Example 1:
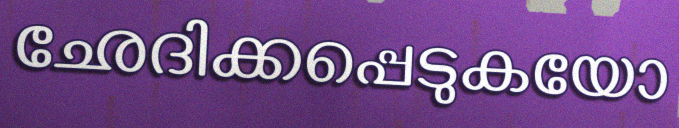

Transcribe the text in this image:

ഛേദിക്കപ്പെടുകയോ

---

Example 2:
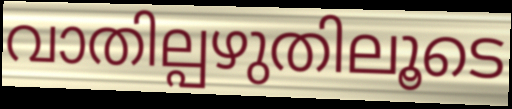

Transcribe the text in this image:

വാതില്പഴുതിലൂടെ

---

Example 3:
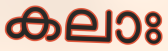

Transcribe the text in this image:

കലാഃ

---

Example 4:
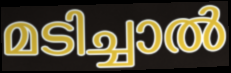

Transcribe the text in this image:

മടിച്ചാൽ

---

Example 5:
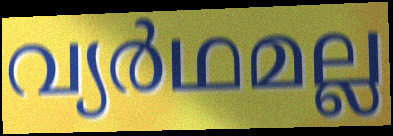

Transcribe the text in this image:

വ്യർഥമല്ല